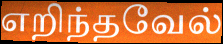
எறிந்தவேல்